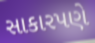
સાકારપણે